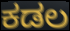
ಕಡಲ